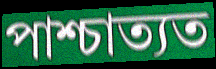
পাশ্চাত্যত